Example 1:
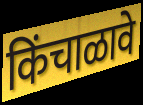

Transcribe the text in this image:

किंचाळावे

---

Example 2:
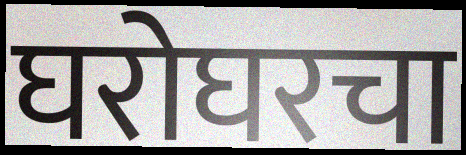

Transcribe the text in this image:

घरोघरचा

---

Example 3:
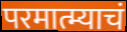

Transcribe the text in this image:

परमात्म्याचं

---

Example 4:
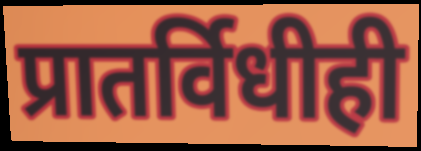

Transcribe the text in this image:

प्रातर्विधीही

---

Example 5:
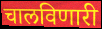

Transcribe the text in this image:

चालविणारी